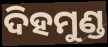
ଦିହମୁଣ୍ଡ